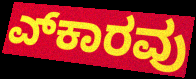
ಎ್‍ಕಾರವು